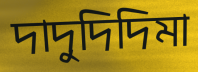
দাদুদিদিমা